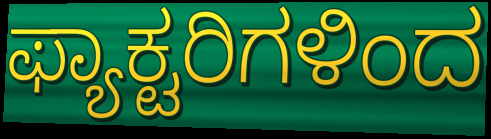
ಫ್ಯಾಕ್ಟರಿಗಳಿಂದ